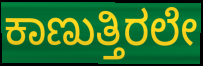
ಕಾಣುತ್ತಿರಲೇ